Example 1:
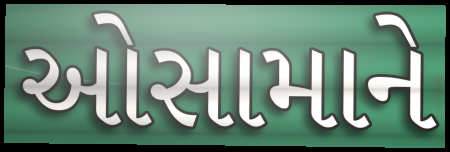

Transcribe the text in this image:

ઓસામાને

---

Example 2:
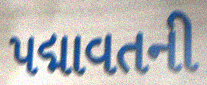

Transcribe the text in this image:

પદ્માવતની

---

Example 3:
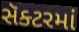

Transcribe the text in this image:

સૅક્ટરમાં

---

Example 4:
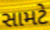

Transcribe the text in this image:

સામટે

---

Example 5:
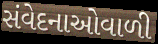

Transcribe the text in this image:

સંવેદનાઓવાળી